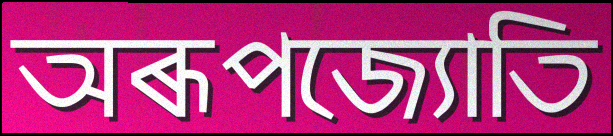
অৰূপজ্যোতি